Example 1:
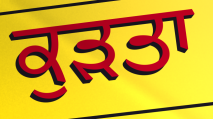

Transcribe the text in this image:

ਕੁੜਤਾ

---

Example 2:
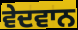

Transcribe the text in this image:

ਵੇਦਵਾਨ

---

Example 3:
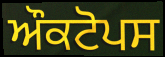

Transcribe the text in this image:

ਔਕਟੋਪਸ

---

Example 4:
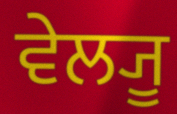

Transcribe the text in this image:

ਵੇਲ੍ਯੂ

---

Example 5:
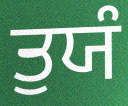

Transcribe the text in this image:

ਤੁਯੰ